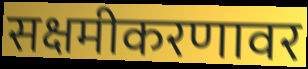
सक्षमीकरणावर